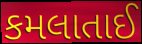
કમલાતાઈ